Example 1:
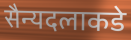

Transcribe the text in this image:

सैन्यदलाकडे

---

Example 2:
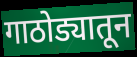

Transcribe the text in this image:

गाठोड्यातून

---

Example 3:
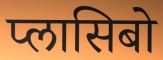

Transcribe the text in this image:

प्लासिबो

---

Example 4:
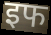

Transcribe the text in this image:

इफ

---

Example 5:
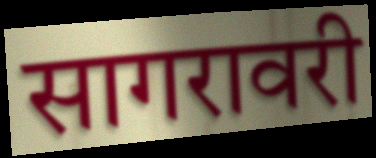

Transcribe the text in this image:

सागरावरी